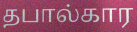
தபால்கார